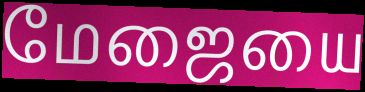
மேஜையை